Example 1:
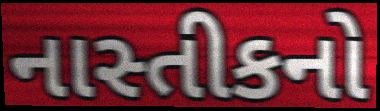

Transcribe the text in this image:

નાસ્તીકનો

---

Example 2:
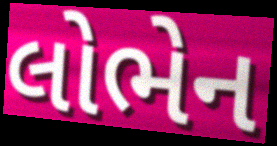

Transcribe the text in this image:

લોભેન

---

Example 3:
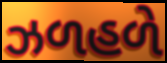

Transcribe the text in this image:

ઝળહળે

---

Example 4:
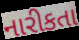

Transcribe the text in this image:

નારીકતા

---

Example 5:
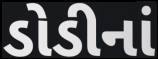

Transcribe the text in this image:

ડોડીનાં